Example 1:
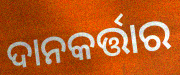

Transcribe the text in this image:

ଦାନକର୍ତ୍ତାର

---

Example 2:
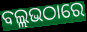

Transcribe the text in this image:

ବଲ୍ଲଭଠାରେ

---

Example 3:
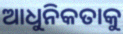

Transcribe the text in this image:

ଆଧୁନିକତାକୁ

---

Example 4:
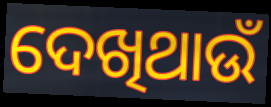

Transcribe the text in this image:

ଦେଖିଥାଉଁ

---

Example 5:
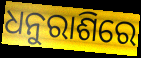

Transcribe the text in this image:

ଧନୁରାଶିରେ